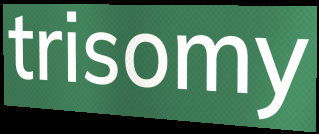
trisomy